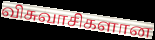
விசுவாசிகளான